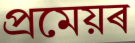
প্ৰমেয়ৰ